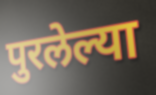
पुरलेल्या